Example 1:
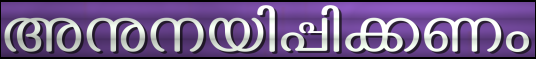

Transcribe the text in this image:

അനുനയിപ്പിക്കണം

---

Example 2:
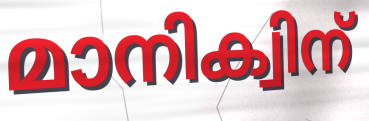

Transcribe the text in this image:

മാനിക്വിന്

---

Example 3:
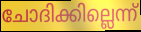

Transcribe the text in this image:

ചോദിക്കില്ലെന്ന്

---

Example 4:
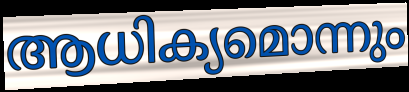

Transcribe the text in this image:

ആധിക്യമൊന്നും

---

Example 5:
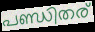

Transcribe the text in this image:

പണ്ഡിതര്